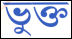
ভুক্ত